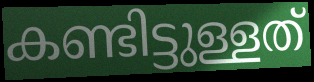
കണ്ടിട്ടുള്ളത്